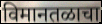
विमानतळाचा